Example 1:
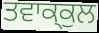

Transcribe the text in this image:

ਤਵਾਕ੍ਕੁਲ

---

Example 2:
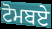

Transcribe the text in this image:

ਟੋਮਬਏ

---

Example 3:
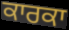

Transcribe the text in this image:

ਕਾਰਕਾ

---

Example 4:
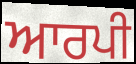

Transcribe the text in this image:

ਆਰਪੀ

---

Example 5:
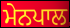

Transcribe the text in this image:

ਮੇਨਪਾਲ